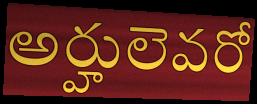
అర్హులెవరో